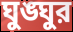
ঘুঙ্ঘুর